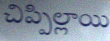
చిప్పిల్లాయి